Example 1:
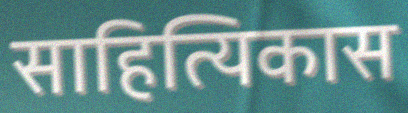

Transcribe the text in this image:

साहित्यिकास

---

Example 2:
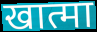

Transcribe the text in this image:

खात्मा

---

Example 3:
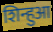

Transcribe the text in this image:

शिन्हुआ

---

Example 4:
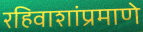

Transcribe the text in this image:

रहिवाशांप्रमाणे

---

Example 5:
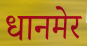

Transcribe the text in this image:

धानमेर